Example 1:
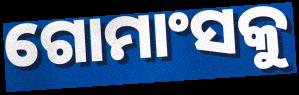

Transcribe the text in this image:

ଗୋମାଂସକୁ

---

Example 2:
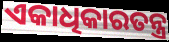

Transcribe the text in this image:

ଏକାଧିକାରତନ୍ତ୍ର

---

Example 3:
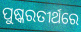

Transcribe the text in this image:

ପୁଷ୍କରତୀର୍ଥରେ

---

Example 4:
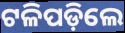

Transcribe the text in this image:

ଟଳିପଡ଼ିଲେ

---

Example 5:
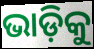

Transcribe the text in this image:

ଭାଡ଼ିକୁ